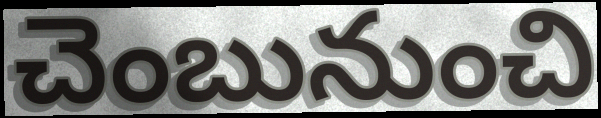
చెంబునుంచి